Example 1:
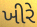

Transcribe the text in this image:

ખીરે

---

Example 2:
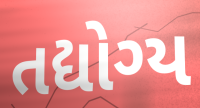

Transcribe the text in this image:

તદ્યોગ્ય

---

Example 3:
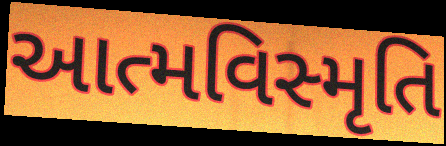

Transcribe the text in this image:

આત્મવિસ્મૃતિ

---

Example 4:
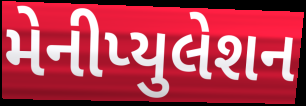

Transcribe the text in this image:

મેનીપ્યુલેશન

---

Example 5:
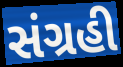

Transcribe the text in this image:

સંગ્રહી